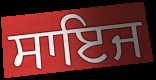
ਸਾਇਜ